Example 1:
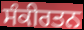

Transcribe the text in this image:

ਸੰਕੀਰਤਨ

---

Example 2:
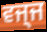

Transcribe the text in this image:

ਵਜ੍ਜ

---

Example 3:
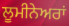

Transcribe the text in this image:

ਲੂਮੀਨੇਅਰਾਂ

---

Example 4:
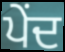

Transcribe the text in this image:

ਪੇਂਦ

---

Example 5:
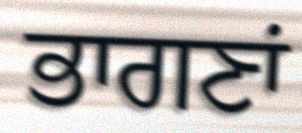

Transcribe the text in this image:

ਭਾਗਣਾਂ